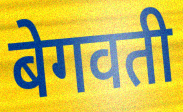
बेगवती